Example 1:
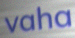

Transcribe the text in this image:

vaha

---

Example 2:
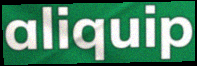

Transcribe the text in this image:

aliquip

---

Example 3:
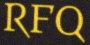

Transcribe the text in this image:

RFQ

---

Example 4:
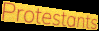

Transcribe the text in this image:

Protestants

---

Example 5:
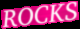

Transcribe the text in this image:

ROCKS